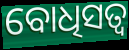
ବୋଧିସତ୍ୱ